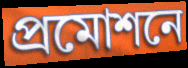
প্রমোশনে